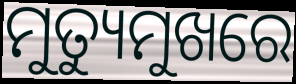
ମୁତ୍ୟୁମୁଖରେ